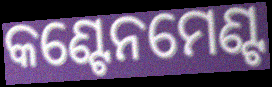
କଣ୍ଟେନମେଣ୍ଟ